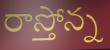
రాస్తోన్న